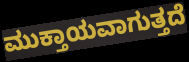
ಮುಕ್ತಾಯವಾಗುತ್ತದೆ